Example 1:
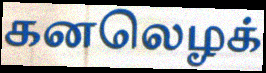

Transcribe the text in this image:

கனலெழக்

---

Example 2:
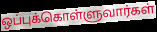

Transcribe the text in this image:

ஒப்புக்கொள்ளுவார்கள்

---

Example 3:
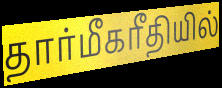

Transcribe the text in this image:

தார்மீகரீதியில்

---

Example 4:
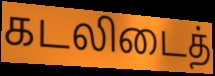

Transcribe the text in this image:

கடலிடைத்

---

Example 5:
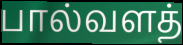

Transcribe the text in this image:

பால்வளத்